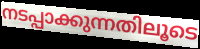
നടപ്പാക്കുന്നതിലൂടെ